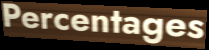
Percentages